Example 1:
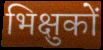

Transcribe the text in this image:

भिक्षुकों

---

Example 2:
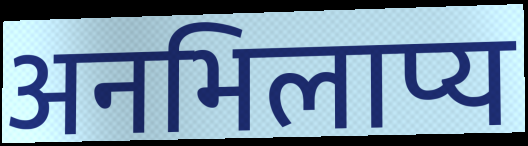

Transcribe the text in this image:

अनभिलाप्य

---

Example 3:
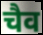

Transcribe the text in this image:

चैव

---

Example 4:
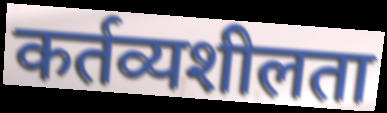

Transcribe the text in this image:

कर्तव्यशीलता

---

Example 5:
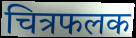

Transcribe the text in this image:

चित्रफलक